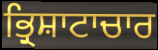
ਭ੍ਰਿਸ਼ਾਟਾਚਾਰ